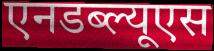
एनडब्ल्यूएस